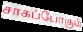
சாகப்போகும்